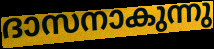
ദാസനാകുന്നു